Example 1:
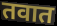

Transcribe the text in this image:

तवात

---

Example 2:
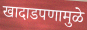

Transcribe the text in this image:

खादाडपणामुळे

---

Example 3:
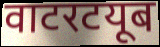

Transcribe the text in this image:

वाटरटयूब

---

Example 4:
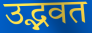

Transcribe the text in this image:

उद्भवत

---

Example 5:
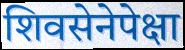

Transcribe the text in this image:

शिवसेनेपेक्षा